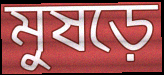
মুষড়ে